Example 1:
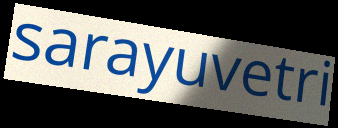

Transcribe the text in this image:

sarayuvetri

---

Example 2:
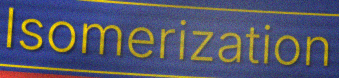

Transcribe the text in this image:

Isomerization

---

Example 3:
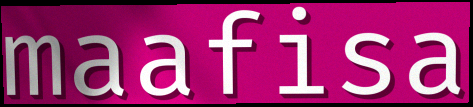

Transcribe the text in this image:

maafisa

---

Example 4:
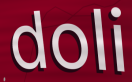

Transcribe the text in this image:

doli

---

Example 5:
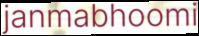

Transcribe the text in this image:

janmabhoomi